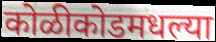
कोळीकोडमधल्या